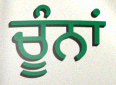
ਚੂੰਨਾਂ